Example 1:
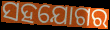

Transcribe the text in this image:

ସହଯୋଗର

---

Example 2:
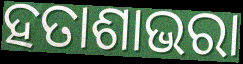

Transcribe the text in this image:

ହତାଶାଭରା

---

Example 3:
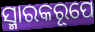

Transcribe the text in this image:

ସ୍ମାରକରୂପେ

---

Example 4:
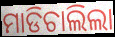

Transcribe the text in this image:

ମାଡିଚାଲିଲା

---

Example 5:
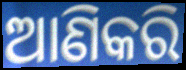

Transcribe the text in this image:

ଆଣିକରି